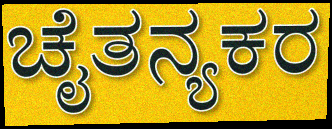
ಚೈತನ್ಯಕರ